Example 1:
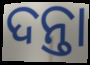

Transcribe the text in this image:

ଦନ୍ତା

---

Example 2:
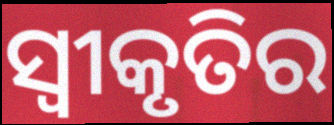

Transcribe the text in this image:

ସ୍ୱୀକୃତିର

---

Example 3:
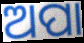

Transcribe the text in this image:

ଅପା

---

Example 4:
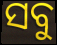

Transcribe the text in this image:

ସବୁ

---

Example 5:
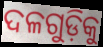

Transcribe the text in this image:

ଦଳଗୁଡ଼ିକୁ